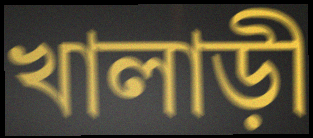
খালাড়ী